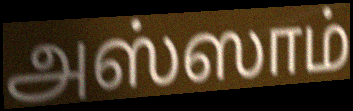
அஸ்ஸாம்